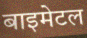
बाइमेटल